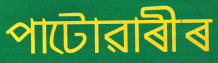
পাটোৱাৰীৰ